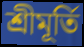
শ্রীমূর্তি